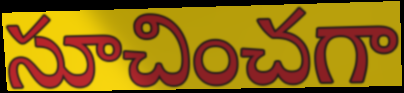
సూచించగా